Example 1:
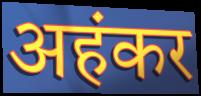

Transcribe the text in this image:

अहंकर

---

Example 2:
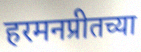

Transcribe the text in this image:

हरमनप्रीतच्या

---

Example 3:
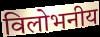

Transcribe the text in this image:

विलोभनीय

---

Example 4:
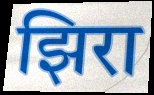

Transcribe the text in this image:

झिरा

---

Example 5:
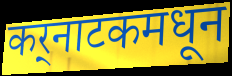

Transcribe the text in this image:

कर्नाटकमधून